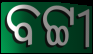
ବଟ୍ଟୀ